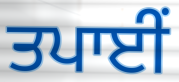
ਤਪਾਈਂ